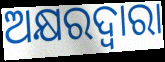
ଅକ୍ଷରଦ୍ଵାରା